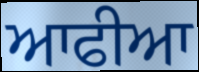
ਆਫੀਆ